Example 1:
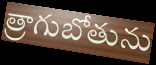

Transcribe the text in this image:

త్రాగుబోతును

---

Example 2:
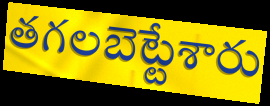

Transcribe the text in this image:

తగలబెట్టేశారు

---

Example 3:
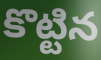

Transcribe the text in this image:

కొట్టిన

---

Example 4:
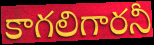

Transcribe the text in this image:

కాగలిగారనీ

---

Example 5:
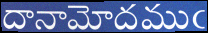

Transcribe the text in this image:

దానామోదముఁ